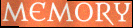
MEMORY